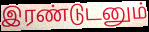
இரண்டுடனும்